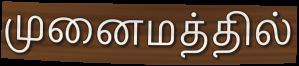
முனைமத்தில்